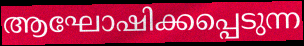
ആഘോഷിക്കപ്പെടുന്ന